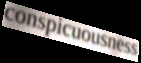
conspicuousness